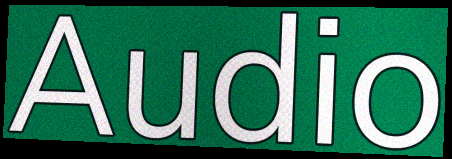
Audio